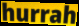
hurrah